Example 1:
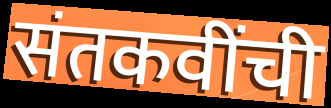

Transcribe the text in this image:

संतकवींची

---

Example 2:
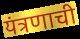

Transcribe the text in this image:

यंत्रणाची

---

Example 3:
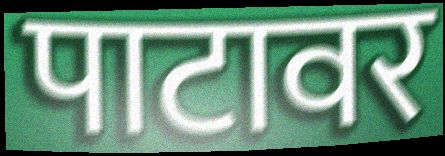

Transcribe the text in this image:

पाटावर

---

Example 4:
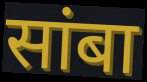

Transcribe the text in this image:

सांबा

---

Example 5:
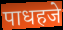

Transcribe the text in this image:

पाधहजे